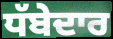
ਧੱਬੇਦਾਰ